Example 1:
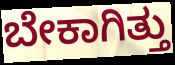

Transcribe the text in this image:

ಬೇಕಾಗಿತ್ತು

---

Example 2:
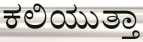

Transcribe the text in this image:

ಕಲಿಯುತ್ತಾ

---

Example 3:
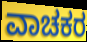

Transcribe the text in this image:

ವಾಚಕರ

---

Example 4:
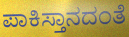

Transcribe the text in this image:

ಪಾಕಿಸ್ತಾನದಂತೆ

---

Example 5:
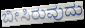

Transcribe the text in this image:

ಬೀಸಿರುವುದು